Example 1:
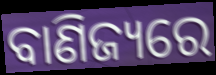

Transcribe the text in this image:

ବାଣିଜ୍ୟରେ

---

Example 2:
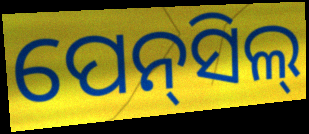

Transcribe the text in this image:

ପେନ୍‌ସିଲ୍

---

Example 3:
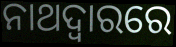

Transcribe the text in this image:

ନାଥଦ୍ୱାରରେ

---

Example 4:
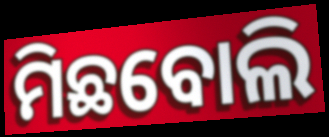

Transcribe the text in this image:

ମିଛବୋଲି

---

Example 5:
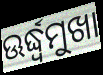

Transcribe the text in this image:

ଊର୍ଦ୍ଧ୍ବମୁଖା